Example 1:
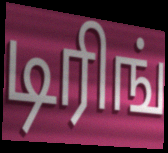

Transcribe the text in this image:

டிரிங்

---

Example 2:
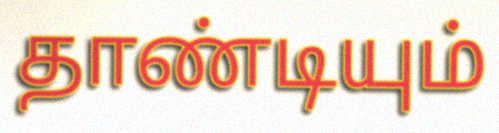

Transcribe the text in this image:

தாண்டியும்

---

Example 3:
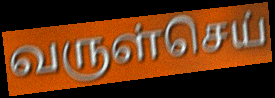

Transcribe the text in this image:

வருள்செய்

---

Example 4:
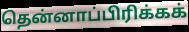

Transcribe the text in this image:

தென்னாப்பிரிக்கக்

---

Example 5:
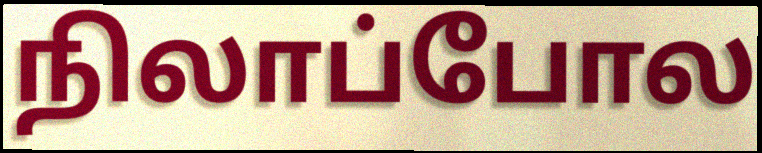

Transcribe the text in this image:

நிலாப்போல